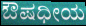
ಔಷಧೀಯ